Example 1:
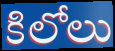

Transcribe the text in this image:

కిలోలు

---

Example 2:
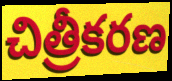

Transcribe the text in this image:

చిత్రీకరణ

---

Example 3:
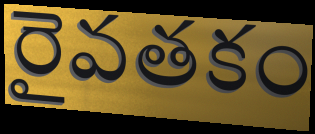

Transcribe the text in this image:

రైవతకం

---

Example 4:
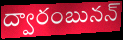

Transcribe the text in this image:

ద్వారంబునన్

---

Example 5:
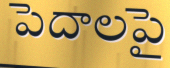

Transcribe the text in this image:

పెదాలపై